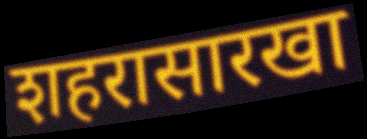
शहरासारखा